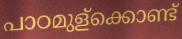
പാഠമുള്ക്കൊണ്ട്